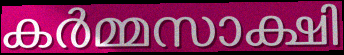
കർമ്മസാക്ഷി